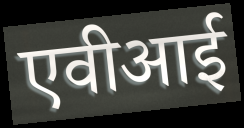
एवीआई